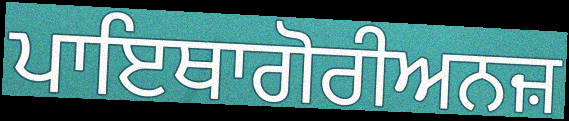
ਪਾਇਥਾਗੋਰੀਅਨਜ਼